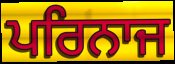
ਪਰਿਨਾਜ